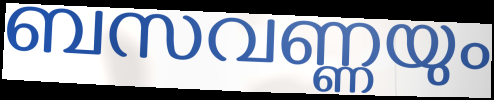
ബസവണ്ണയും